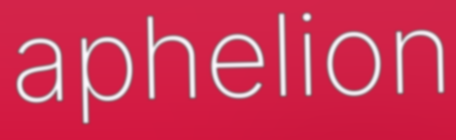
aphelion